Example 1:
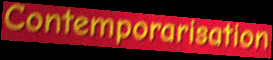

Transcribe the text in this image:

Contemporarisation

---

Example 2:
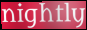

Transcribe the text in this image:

nightly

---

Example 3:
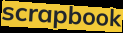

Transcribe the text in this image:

scrapbook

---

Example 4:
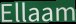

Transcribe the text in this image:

Ellaam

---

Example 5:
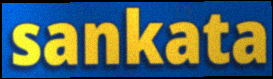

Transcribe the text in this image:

sankata